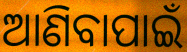
ଆଣିବାପାଇଁ